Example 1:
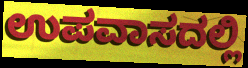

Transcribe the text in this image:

ಉಪವಾಸದಲ್ಲಿ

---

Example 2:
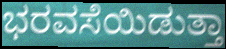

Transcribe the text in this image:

ಭರವಸೆಯಿಡುತ್ತಾ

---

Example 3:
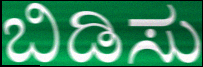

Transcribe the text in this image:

ಬಿಡಿಸು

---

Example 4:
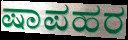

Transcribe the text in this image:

ಷಾಪಹರ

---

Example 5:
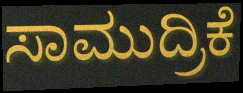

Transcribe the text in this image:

ಸಾಮುದ್ರಿಕೆ